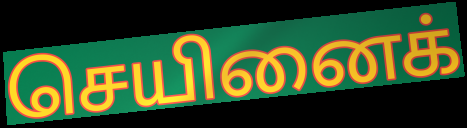
செயினைக்